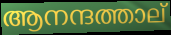
ആനന്ദത്താല്